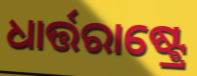
ଧାର୍ତ୍ତରାଷ୍ଟ୍ରେ